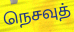
நெசவுத்